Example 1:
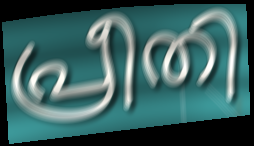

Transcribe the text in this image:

പ്രീതി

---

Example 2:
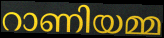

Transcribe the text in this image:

റാണിയമ്മ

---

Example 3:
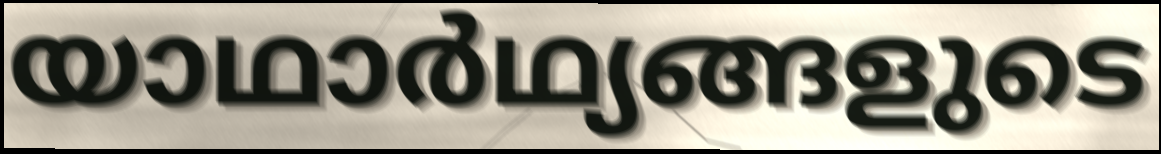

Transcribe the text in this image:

യാഥാർഥ്യങ്ങളുടെ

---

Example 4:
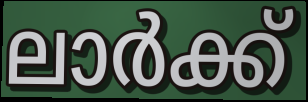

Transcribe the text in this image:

ലാർക്ക്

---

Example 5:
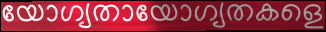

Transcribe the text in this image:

യോഗ്യതായോഗ്യതകളെ